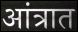
आंत्रात